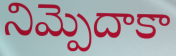
నిమ్పెదాకా